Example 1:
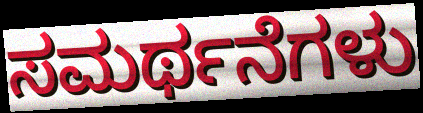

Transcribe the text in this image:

ಸಮರ್ಥನೆಗಳು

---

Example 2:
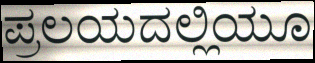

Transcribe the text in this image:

ಪ್ರಲಯದಲ್ಲಿಯೂ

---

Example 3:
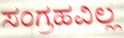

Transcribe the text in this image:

ಸಂಗ್ರಹವಿಲ್ಲ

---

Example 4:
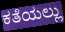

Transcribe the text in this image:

ಕತೆಯಲ್ಲು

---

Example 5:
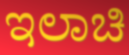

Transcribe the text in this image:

ಇಲಾಚಿ